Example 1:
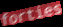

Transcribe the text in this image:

forties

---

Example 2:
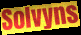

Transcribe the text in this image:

Solvyns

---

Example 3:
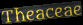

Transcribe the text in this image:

Theaceae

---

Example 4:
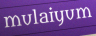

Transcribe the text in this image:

mulaiyum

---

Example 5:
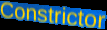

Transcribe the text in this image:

Constrictor